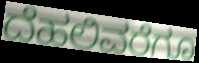
ದೆಹಲಿವರೆಗೂ